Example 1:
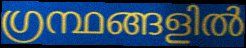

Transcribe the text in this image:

ഗ്രന്ഥങ്ങളിൽ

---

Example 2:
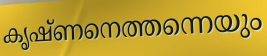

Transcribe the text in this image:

കൃഷ്ണനെത്തന്നെയും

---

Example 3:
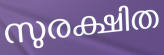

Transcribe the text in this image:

സുരക്ഷിത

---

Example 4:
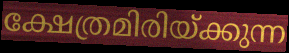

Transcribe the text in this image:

ക്ഷേത്രമിരിയ്ക്കുന്ന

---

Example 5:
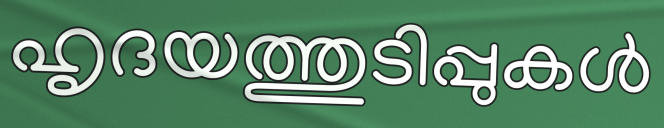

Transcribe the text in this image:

ഹൃദയത്തുടിപ്പുകൾ